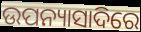
ଉପନ୍ୟାସାଦିରେ